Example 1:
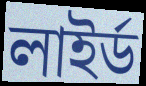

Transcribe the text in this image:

লাইর্ড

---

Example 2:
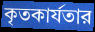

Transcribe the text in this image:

কৃতকার্যতার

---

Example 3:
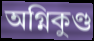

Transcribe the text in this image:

অগ্নিকুণ্ড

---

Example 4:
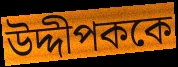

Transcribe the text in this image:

উদ্দীপককে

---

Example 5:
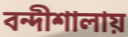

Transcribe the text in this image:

বন্দীশালায়